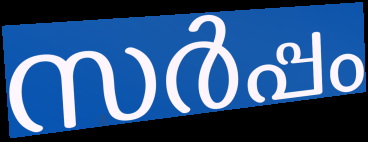
സർപ്പം